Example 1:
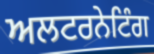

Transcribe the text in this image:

ਅਲਟਰਨੇਟਿੰਗ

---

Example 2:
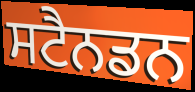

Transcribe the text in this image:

ਸਟੈਨਡਨ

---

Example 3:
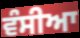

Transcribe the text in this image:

ਵੰਸੀਆ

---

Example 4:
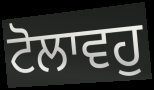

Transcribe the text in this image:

ਟੋਲਾਵਹੁ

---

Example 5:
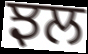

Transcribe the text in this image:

ਝਲ